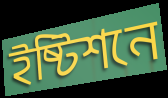
ইষ্টিশনে